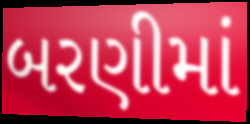
બરણીમાં